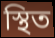
স্থিত